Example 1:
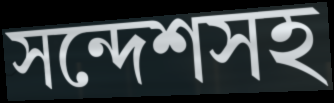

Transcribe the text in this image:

সন্দেশসহ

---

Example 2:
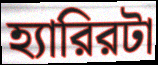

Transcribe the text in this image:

হ্যারিরটা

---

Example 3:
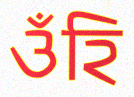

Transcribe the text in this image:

ওঁহি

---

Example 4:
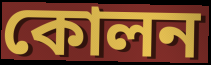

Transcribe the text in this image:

কোলন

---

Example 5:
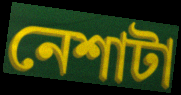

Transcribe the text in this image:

নেশাটা